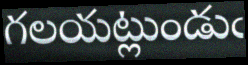
గలయట్లుండుఁ